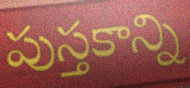
పుస్తకాన్ని